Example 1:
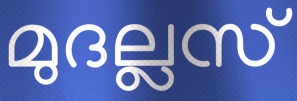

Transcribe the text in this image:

മുദല്ലസ്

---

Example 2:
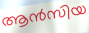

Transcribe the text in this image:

ആൻസിയ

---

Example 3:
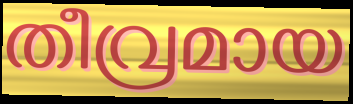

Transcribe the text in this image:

തീവ്രമായ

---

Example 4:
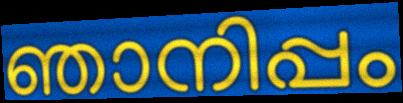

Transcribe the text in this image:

ഞാനിപ്പം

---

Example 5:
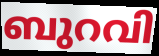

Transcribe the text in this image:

ബുറവി